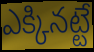
ఎక్కినట్టే